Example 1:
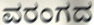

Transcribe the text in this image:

ವರಂಗದ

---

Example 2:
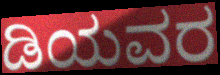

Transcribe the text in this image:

ಡಿಯವರ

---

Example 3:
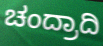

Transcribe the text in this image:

ಚಂದ್ರಾದಿ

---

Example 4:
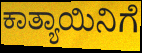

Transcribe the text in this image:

ಕಾತ್ಯಾಯಿನಿಗೆ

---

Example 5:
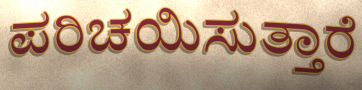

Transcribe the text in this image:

ಪರಿಚಯಿಸುತ್ತಾರೆ